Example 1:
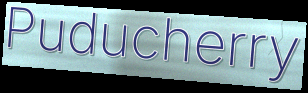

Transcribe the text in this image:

Puducherry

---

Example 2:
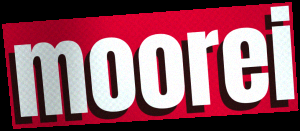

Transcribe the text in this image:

moorei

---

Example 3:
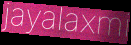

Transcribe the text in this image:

jayalaxmi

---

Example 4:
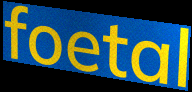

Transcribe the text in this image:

foetal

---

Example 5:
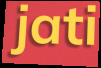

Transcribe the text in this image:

jati